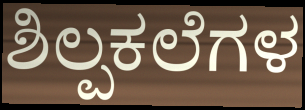
ಶಿಲ್ಪಕಲೆಗಳ